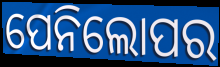
ପେନିଲୋପର